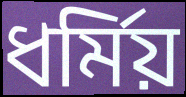
ধর্মিয়